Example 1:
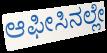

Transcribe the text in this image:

ಆಫೀಸಿನಲ್ಲೇ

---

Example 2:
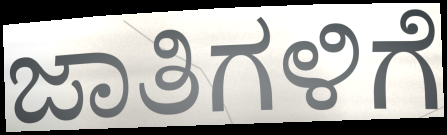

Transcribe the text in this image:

ಜಾತಿಗಳಿಗೆ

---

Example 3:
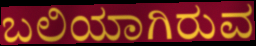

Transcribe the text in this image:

ಬಲಿಯಾಗಿರುವ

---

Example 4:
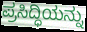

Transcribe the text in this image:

ಪ್ರಸಿದ್ಧಿಯನ್ನು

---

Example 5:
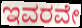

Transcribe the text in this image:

ಇವರವೇ